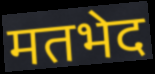
मतभेद